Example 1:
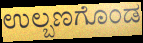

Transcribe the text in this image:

ಉಲ್ಬಣಗೊಂಡ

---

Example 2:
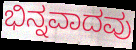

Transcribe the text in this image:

ಭಿನ್ನವಾದವು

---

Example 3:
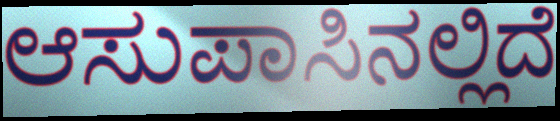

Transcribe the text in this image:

ಆಸುಪಾಸಿನಲ್ಲಿದೆ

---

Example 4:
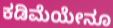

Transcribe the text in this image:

ಕಡಿಮೆಯೇನೂ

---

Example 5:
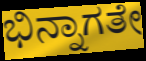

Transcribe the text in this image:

ಭಿನ್ನಾಗತೇ